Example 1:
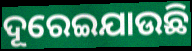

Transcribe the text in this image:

ଦୂରେଇଯାଉଛି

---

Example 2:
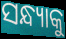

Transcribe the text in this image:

ସନ୍ଧ୍ୟାକୁ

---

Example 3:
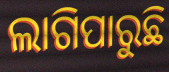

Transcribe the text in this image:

ଲାଗିପାରୁଛି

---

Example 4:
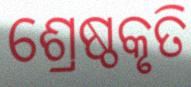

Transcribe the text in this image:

ଶ୍ରେଷ୍ଠକୃତି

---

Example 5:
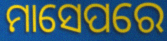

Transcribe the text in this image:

ମାସେପରେ